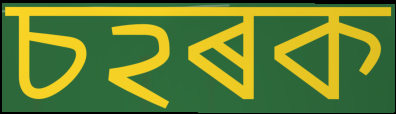
চহৰক